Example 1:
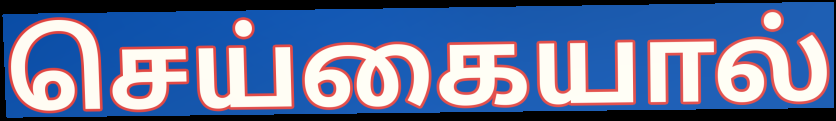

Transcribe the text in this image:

செய்கையால்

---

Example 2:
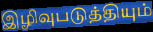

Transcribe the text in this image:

இழிவுபடுத்தியும்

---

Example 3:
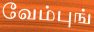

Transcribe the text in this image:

வேம்புங்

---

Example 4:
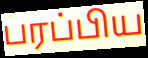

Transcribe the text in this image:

பரப்பிய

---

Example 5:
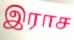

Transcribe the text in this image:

இராச